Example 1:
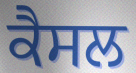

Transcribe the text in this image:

ਕੈਸਲ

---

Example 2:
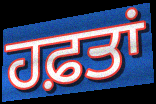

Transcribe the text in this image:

ਹਫ਼ਤਾਂ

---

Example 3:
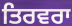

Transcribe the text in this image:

ਤਿਰਵਰਾ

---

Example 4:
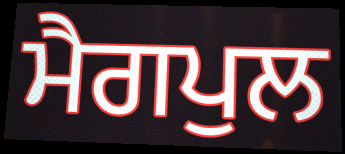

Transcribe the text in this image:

ਮੈਗਪੁਲ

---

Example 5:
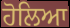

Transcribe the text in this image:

ਹੋਲਿਆ